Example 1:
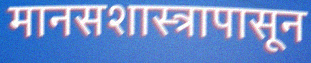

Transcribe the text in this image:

मानसशास्त्रापासून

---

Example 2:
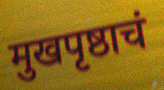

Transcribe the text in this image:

मुखपृष्ठाचं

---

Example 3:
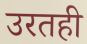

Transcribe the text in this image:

उरतही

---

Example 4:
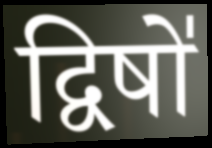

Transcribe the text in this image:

द्विषो॑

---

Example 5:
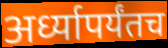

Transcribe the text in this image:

अर्ध्यापर्यंतच